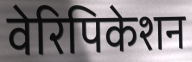
वेरिपिकेशन